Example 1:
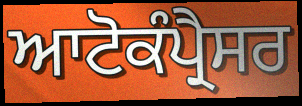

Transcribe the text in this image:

ਆਟੋਕੰਪ੍ਰੈਸਰ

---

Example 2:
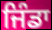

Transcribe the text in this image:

ਜਿੰਡਾ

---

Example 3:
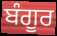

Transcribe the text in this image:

ਬੰਗੂਰ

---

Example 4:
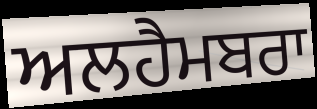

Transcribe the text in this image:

ਅਲਹੈਮਬਰਾ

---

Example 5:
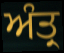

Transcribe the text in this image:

ਅੰਤ੍ਰ